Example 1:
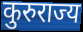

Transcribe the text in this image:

कुरुराज्य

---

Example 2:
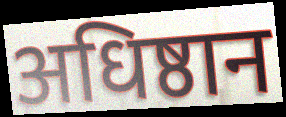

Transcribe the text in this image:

अधिष्ठान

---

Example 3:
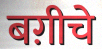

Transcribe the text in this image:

बग़ीचे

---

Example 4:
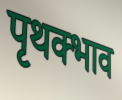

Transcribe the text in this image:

पृथक्भाव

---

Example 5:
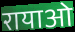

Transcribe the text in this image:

रायाओ